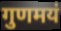
गुणमयं